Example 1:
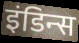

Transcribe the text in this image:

इंडिन्स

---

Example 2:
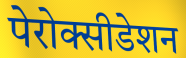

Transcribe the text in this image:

पेरोक्सीडेशन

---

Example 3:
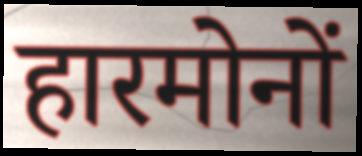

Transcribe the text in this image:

हारमोनों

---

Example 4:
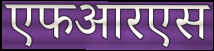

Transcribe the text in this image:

एफआरएस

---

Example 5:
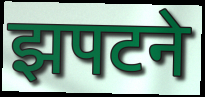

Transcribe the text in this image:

झपटने